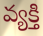
వ్యక్తి